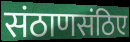
संठाणसंठिए